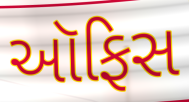
આૅફિસ